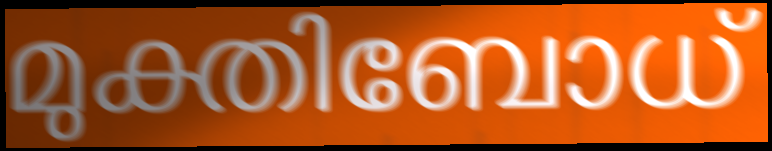
മുക്തിബോധ്